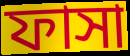
ফাসা